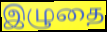
இழுதை